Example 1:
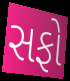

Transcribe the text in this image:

સફો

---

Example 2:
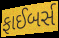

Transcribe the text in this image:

ફાઈબર્સ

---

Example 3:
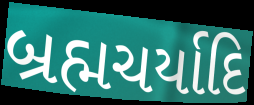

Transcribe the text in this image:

બ્રહ્મચર્યાદિ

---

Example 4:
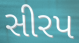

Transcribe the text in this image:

સીરપ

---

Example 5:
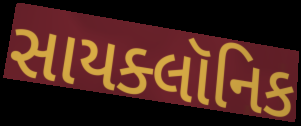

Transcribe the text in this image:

સાયક્લૉનિક